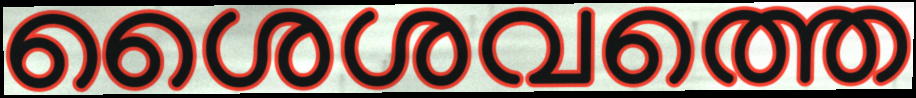
ശൈശവത്തെ